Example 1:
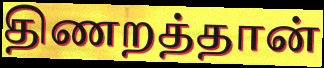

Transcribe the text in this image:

திணறத்தான்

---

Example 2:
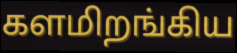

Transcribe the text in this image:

களமிறங்கிய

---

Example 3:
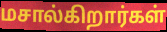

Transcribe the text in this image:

மசால்கிறார்கள்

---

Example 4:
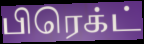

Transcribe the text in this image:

பிரெக்ட்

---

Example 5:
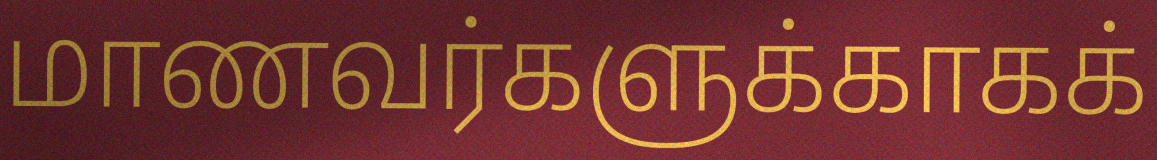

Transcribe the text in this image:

மாணவர்களுக்காகக்